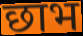
छाभ